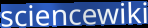
sciencewiki